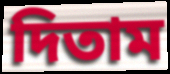
দিতাম